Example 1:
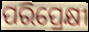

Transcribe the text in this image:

ପରିପ୍ରେକ୍ଷୀ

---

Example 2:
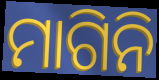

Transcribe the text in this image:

ମାଗିନି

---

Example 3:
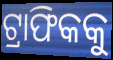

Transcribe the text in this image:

ଟ୍ରାଫିକକୁ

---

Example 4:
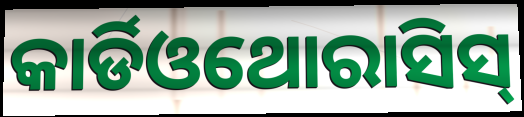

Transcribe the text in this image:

କାର୍ଡିଓଥୋରାସିସ୍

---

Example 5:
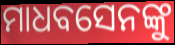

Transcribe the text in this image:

ମାଧବସେନଙ୍କୁ